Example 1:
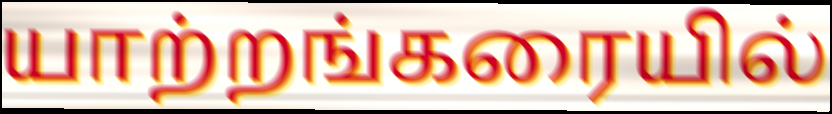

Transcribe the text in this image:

யாற்றங்கரையில்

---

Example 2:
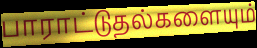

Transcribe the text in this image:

பாராட்டுதல்களையும்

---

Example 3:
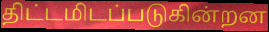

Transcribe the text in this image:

திட்டமிடப்படுகின்றன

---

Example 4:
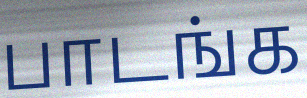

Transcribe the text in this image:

பாடங்க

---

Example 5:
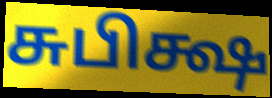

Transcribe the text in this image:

சுபிக்ஷ